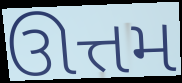
ઊત્તમ